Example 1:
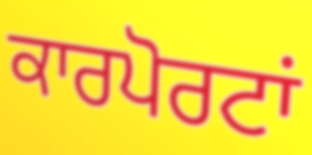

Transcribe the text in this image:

ਕਾਰਪੋਰਟਾਂ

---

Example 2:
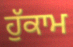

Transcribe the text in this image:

ਹੁੱਕਾਮ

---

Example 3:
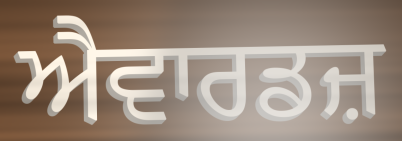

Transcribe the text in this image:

ਐਵਾਰਡਜ਼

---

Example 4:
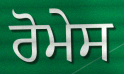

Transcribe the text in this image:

ਰੋਮੇਸ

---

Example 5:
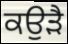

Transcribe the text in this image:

ਕਉੜੈ